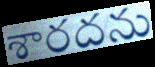
శారదను